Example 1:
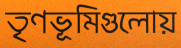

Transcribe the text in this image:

তৃণভূমিগুলোয়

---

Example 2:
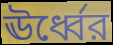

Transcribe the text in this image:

ঊর্ধ্বের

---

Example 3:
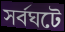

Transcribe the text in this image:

সর্বঘটে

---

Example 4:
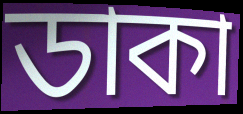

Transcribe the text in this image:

ডাকা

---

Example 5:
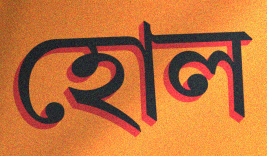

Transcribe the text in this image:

হোল